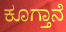
ಕೂಗ್ತಾನೆ